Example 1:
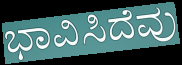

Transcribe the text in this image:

ಭಾವಿಸಿದೆವು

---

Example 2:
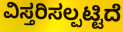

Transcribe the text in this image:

ವಿಸ್ತರಿಸಲ್ಪಟ್ಟಿದೆ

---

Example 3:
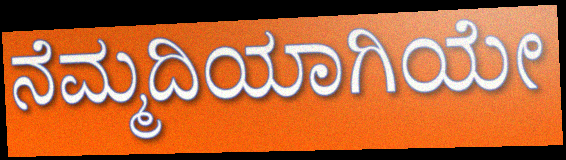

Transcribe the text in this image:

ನೆಮ್ಮದಿಯಾಗಿಯೇ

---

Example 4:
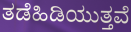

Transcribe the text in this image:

ತಡೆಹಿಡಿಯುತ್ತವೆ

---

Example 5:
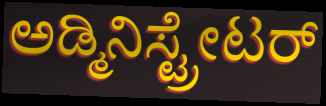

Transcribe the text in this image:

ಅಡ್ಮಿನಿಸ್ಟ್ರೇಟರ್